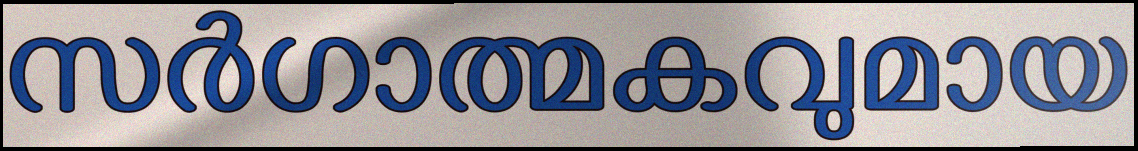
സർഗാത്മകവുമായ